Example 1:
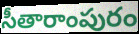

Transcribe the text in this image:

సీతారాంపురం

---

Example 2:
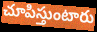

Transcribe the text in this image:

చూపిస్తుంటారు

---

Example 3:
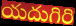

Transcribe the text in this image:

యదుగిరి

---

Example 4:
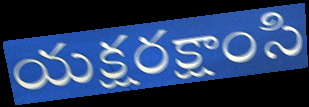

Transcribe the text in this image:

యక్షరక్షాంసి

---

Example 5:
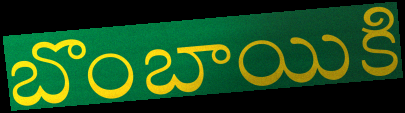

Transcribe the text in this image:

బొంబాయికి